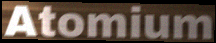
Atomium